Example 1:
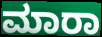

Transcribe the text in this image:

ಮಾರಾ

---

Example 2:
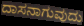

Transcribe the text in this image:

ದಾಸನಾಗುವುದು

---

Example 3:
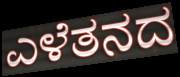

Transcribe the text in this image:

ಎಳೆತನದ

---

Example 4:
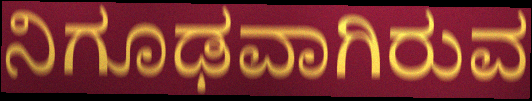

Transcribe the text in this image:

ನಿಗೂಢವಾಗಿರುವ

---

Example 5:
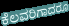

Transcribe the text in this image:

ಕೆಲವರಿಗಾದರೂ